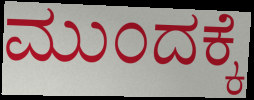
ಮುಂದಕ್ಕೆ